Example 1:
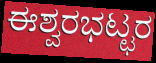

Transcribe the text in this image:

ಈಶ್ವರಭಟ್ಟರ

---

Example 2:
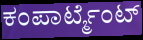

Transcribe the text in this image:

ಕಂಪಾರ್ಟ್ಮೆಂಟ್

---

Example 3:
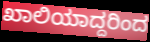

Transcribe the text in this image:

ಖಾಲಿಯಾದ್ದರಿಂದ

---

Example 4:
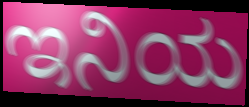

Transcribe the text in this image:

ಇನಿಯ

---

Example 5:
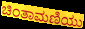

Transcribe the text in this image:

ಚಿಂತಾಮಣಿಯು